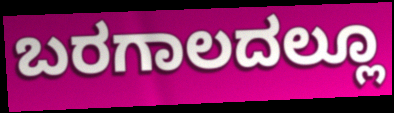
ಬರಗಾಲದಲ್ಲೂ